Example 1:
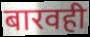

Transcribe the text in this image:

बारवही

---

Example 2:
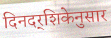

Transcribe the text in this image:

दिनदर्शिकेनुसार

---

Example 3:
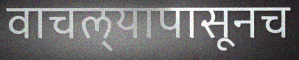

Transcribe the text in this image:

वाचल्यापासूनच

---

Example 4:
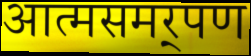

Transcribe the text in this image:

आत्मसमर्पण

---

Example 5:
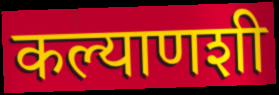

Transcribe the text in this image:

कल्याणशी